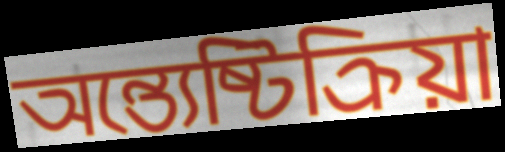
অন্ত্যেষ্টিক্রিয়া